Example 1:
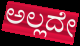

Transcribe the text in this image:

ಅಲ್ಲದೇ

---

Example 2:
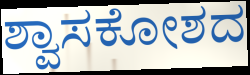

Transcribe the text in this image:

ಶ್ವಾಸಕೋಶದ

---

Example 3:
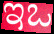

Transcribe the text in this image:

ಇಒ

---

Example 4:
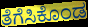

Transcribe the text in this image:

ತೆಗೆಸಿಕೊಂಡ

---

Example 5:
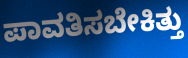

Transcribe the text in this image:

ಪಾವತಿಸಬೇಕಿತ್ತು